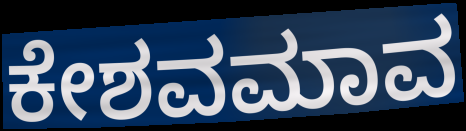
ಕೇಶವಮಾವ